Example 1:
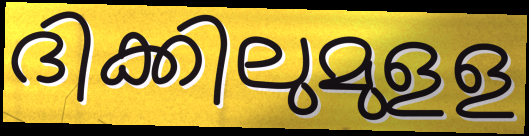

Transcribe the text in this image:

ദിക്കിലുമുളള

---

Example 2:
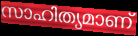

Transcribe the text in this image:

സാഹിത്യമാണ്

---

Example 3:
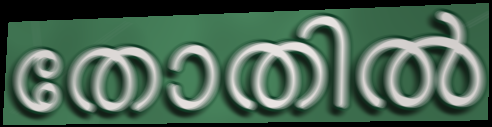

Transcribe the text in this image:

തോതിൽ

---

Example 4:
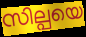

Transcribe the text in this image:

സില്പയെ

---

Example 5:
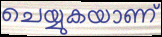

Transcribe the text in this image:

ചെയ്യുകയാണ്